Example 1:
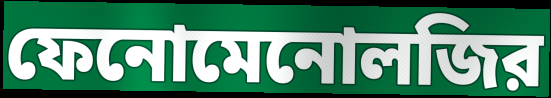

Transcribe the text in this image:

ফেনোমেনোলজির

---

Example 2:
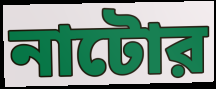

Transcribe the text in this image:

নাটোর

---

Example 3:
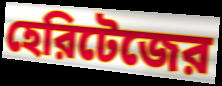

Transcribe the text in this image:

হেরিটেজের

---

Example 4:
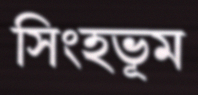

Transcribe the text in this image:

সিংহভূম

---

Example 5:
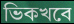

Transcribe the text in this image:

ভিকখবে